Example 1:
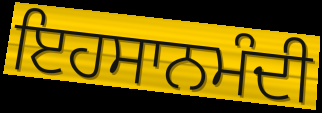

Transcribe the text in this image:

ਇਹਸਾਨਮੰਦੀ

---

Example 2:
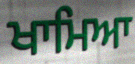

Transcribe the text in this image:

ਖਾਮਿਆ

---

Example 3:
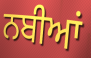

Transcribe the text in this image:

ਨਬੀਆਂ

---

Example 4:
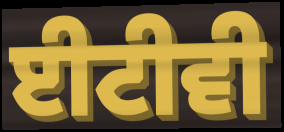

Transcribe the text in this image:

ਈਟੀਵੀ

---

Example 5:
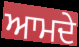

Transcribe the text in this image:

ਆਮਦੇ